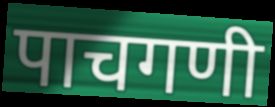
पाचगणी